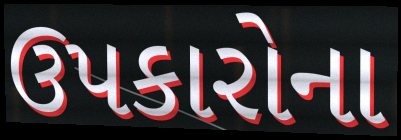
ઉપકારોના